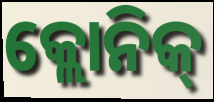
କ୍ଲୋନିକ୍